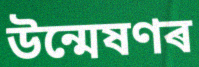
উন্মেষণৰ